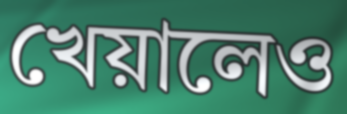
খেয়ালেও